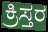
ಕ್ರಿಸ್ತರ